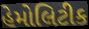
હેમોલિટીક